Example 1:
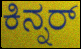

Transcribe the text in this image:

ಕಿನ್ನರ್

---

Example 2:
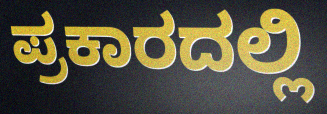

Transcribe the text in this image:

ಪ್ರಕಾರದಲ್ಲಿ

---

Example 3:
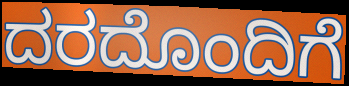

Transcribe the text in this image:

ದರದೊಂದಿಗೆ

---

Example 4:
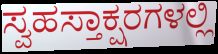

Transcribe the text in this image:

ಸ್ವಹಸ್ತಾಕ್ಷರಗಳಲ್ಲಿ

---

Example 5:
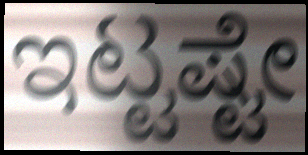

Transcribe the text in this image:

ಇಟ್ಟಷ್ಟೇ